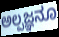
ಅಲ್ಪಜ್ಞನೂ